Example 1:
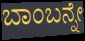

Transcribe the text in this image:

ಬಾಂಬನ್ನೇ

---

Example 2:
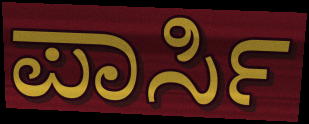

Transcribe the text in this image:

ಪಾರ್ಸಿ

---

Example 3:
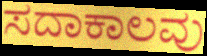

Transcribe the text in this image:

ಸದಾಕಾಲವು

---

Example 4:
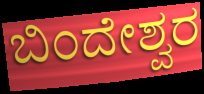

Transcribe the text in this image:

ಬಿಂದೇಶ್ವರ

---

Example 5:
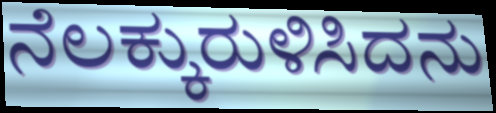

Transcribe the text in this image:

ನೆಲಕ್ಕುರುಳಿಸಿದನು